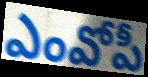
ఎంవోపీ